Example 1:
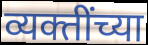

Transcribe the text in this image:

व्‍यक्‍तींच्‍या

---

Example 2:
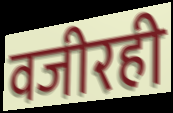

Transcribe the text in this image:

वजीरही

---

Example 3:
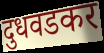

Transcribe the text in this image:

दुधवडकर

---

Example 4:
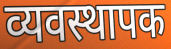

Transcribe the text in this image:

व्यवस्थापक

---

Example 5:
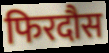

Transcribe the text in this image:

फिरदौस